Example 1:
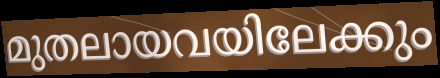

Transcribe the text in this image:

മുതലായവയിലേക്കും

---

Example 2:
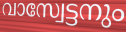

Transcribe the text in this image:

വാസ്വേട്ടനും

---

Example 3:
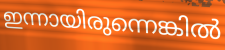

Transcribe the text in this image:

ഇന്നായിരുന്നെങ്കിൽ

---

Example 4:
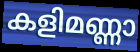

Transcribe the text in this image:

കളിമണ്ണാ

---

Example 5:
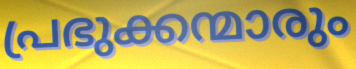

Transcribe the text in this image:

പ്രഭുക്കന്മാരും